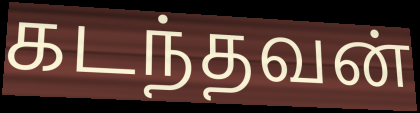
கடந்தவன்